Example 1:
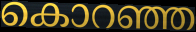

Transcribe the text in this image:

കൊറഞ്ഞ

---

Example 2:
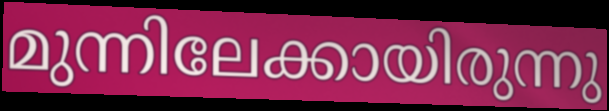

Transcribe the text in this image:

മുന്നിലേക്കായിരുന്നു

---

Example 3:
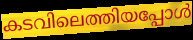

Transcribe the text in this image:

കടവിലെത്തിയപ്പോൾ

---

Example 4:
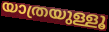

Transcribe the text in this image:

യാത്രയുള്ളൂ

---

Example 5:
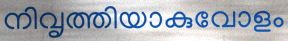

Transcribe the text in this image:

നിവൃത്തിയാകുവോളം